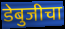
डेबुजीचा